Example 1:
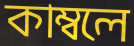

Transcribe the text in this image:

কাম্বলে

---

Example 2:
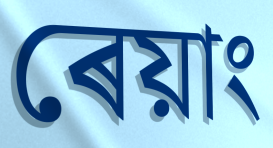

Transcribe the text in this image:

ৰেয়াং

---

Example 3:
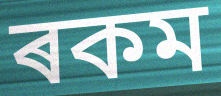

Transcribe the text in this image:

ৰকম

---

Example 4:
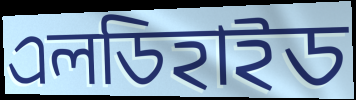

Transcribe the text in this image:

এলডিহাইড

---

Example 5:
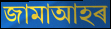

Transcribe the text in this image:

জামাআহৰ